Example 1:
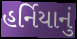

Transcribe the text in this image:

હર્નિયાનું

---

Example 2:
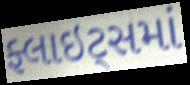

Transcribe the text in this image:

ફ્લાઇટ્સમાં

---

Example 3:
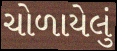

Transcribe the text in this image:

ચોળાયેલું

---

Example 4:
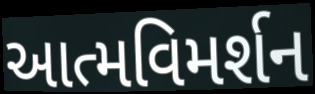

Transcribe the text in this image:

આત્મવિમર્શન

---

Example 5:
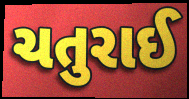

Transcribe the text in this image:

ચતુરાઈ